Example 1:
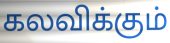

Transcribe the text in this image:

கலவிக்கும்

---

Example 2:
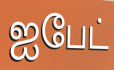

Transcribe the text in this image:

ஐபேட்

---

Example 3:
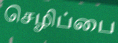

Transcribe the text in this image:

செழிப்பை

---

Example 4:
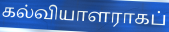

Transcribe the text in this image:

கல்வியாளராகப்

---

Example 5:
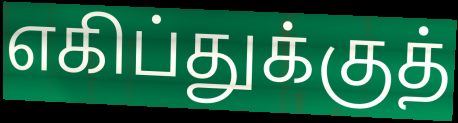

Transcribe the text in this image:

எகிப்துக்குத்